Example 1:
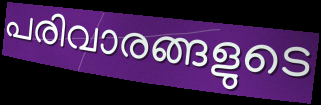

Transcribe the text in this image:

പരിവാരങ്ങളുടെ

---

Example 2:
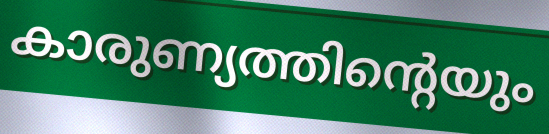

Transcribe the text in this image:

കാരുണ്യത്തിന്റെയും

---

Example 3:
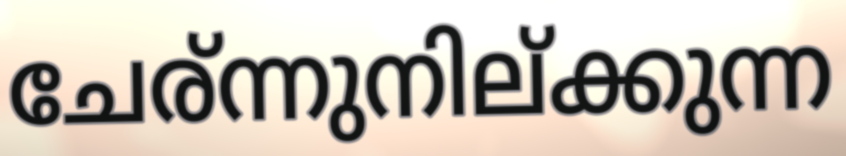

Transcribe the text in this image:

ചേര്ന്നുനില്ക്കുന്ന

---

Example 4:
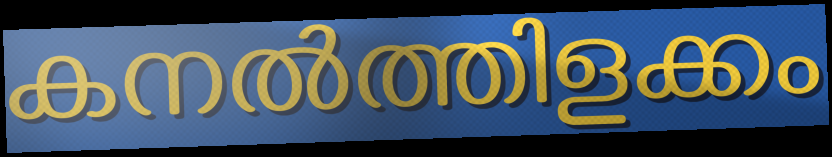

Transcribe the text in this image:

കനൽത്തിളക്കം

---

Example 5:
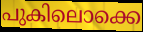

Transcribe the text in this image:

പുകിലൊക്കെ